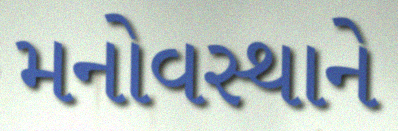
મનોવસ્થાને